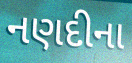
નણદીના